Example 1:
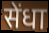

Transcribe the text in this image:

सेंधा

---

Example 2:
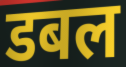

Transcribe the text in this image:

डबल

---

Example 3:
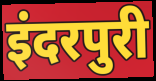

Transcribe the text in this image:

इंदरपुरी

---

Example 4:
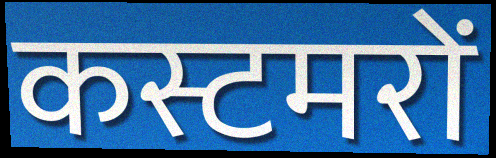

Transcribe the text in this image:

कस्टमरों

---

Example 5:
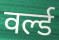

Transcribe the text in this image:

वर्ल्‍ड